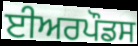
ਈਅਰਪੌਡਸ